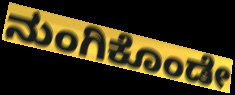
ನುಂಗಿಕೊಂಡೇ